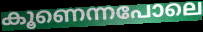
കൂണെന്നപോലെ